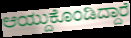
ಆಯ್ದುಕೊಂಡಿದ್ದಾರೆ